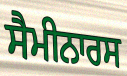
ਸੈਮੀਨਾਰਸ